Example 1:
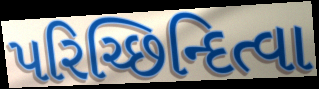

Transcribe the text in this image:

પરિચ્છિન્દિત્વા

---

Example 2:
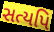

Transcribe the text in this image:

સત્યપિ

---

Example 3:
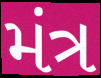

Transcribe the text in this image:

મંત્ર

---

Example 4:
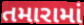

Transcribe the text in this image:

તમારામાં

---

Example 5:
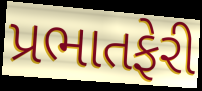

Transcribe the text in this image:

પ્રભાતફેરી